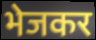
भेजकर